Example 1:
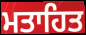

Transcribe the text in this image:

ਮਤਾਹਿਤ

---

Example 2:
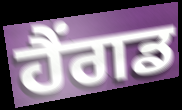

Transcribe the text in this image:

ਹੈਂਗਡ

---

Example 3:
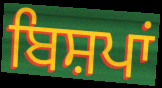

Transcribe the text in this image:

ਬਿਸ਼ਪਾਂ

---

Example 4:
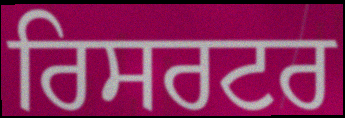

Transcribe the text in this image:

ਰਿਸਰਟਰ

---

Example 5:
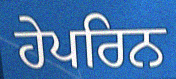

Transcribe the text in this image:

ਹੇਪਰਿਨ